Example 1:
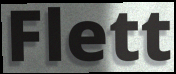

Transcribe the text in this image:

Flett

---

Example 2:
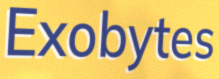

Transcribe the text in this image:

Exobytes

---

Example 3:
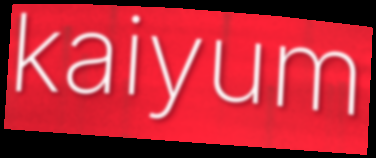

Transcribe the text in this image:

kaiyum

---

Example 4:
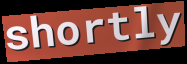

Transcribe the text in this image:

shortly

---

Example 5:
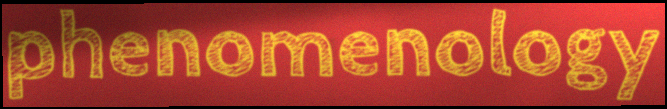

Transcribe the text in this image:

phenomenology